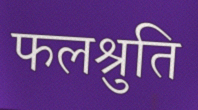
फलश्रुति